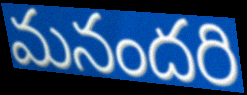
మనందరి